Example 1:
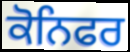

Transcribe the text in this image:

ਕੋਨਿਫਰ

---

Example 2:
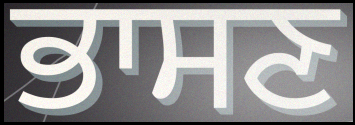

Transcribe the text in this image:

ਭਾਸਣ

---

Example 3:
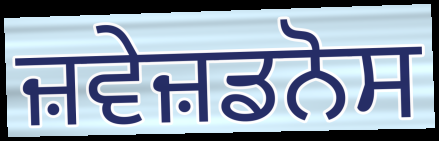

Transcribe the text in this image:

ਜ਼ਵੇਜ਼ਡਨੋਸ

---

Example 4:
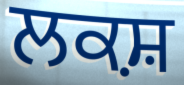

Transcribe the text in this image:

ਲਕ਼ਸ਼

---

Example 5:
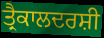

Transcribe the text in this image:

ਤ੍ਰੈਕਾਲਦਰਸ਼ੀ